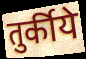
तुर्कीये